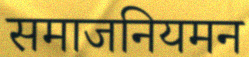
समाजनियमन